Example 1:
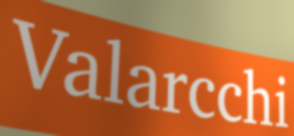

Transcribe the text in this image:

Valarcchi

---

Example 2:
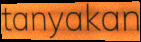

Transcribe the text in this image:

tanyakan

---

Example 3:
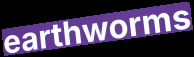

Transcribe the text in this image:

earthworms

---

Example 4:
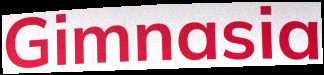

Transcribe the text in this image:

Gimnasia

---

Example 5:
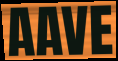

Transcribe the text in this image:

AAVE